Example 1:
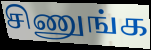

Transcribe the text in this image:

சிணுங்க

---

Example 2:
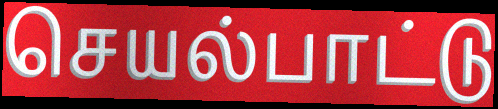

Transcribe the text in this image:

செயல்பாட்டு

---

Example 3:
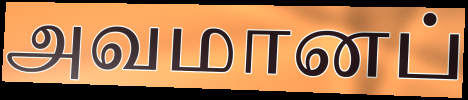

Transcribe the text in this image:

அவமானப்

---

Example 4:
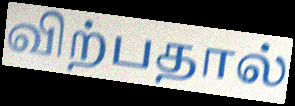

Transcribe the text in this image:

விற்பதால்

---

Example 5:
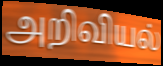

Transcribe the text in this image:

அறிவியல்